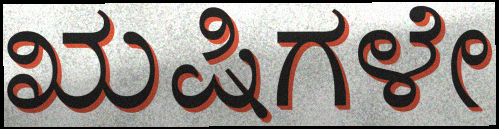
ಋಷಿಗಳೇ